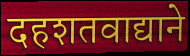
दहशतवाद्याने